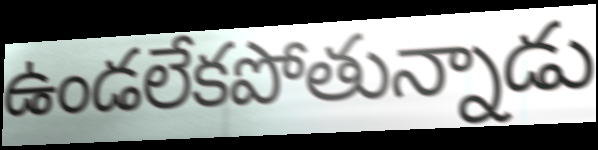
ఉండలేకపోతున్నాడు